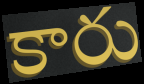
కారు